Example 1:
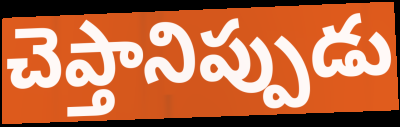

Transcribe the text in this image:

చెప్తానిప్పుడు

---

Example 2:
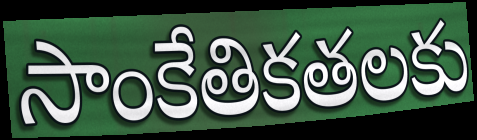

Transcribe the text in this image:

సాంకేతికతలకు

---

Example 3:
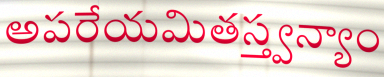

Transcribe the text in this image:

అపరేయమితస్త్వన్యాం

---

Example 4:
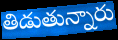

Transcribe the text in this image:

తిడుతున్నారు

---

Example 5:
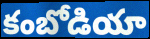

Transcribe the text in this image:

కంబోడియా